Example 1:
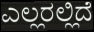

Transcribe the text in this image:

ಎಲ್ಲರಲ್ಲಿದೆ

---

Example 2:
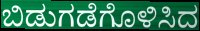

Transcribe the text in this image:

ಬಿಡುಗಡೆಗೊಳಿಸಿದ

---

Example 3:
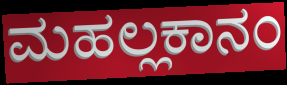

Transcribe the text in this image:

ಮಹಲ್ಲಕಾನಂ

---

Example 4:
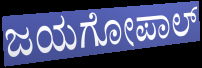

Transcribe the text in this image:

ಜಯಗೋಪಾಲ್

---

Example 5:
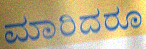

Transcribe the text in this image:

ಮಾರಿದರೂ